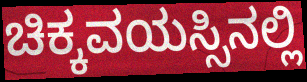
ಚಿಕ್ಕವಯಸ್ಸಿನಲ್ಲಿ